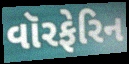
વૉરફેરિન